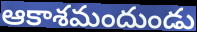
ఆకాశమందుండు